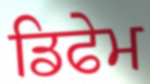
ਡਿਫੇਮ